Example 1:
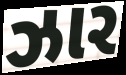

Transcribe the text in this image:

ઝાર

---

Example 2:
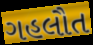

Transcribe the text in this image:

ગહલૌત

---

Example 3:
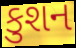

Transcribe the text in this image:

કુશન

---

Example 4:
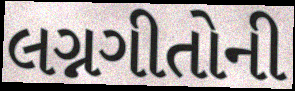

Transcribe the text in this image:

લગ્નગીતોની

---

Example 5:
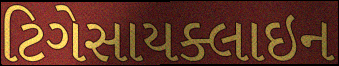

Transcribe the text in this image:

ટિગેસાયક્લાઇન